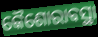
କୈଶୋରାବସ୍ଥା